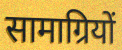
सामाग्रियों